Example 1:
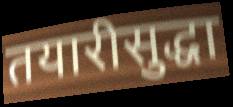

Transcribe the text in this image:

तयारीसुद्धा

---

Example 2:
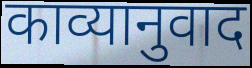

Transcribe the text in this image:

काव्यानुवाद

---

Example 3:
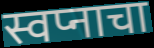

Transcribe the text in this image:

स्वप्नाचा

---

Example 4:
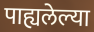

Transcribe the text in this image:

पाह्यलेल्या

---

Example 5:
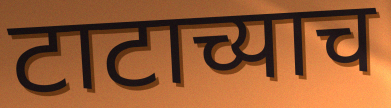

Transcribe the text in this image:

टाटाच्याच